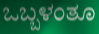
ಒಬ್ಬಳಂತೂ